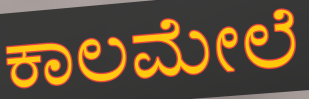
ಕಾಲಮೇಲೆ